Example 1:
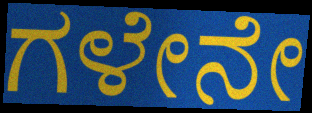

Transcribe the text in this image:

ಗಳೇನೇ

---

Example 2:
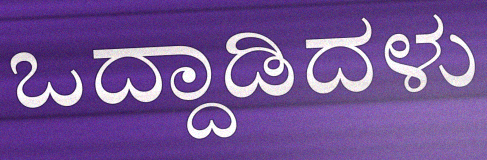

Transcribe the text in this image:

ಒದ್ದಾಡಿದಳು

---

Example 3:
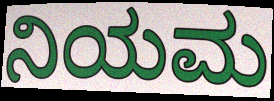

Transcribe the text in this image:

ನಿಯಮ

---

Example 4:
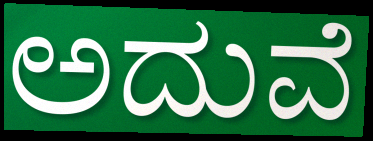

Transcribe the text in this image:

ಅದುವೆ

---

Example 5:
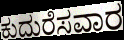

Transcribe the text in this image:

ಕುದುರೆಸವಾರ